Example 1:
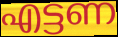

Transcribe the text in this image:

എട്ടണ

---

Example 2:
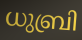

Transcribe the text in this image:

ധുബ്രി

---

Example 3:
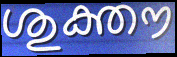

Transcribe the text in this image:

ശുക്തൗ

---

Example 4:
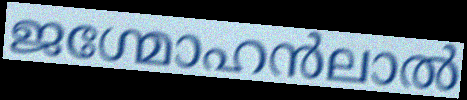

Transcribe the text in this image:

ജഗ്മോഹൻലാൽ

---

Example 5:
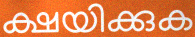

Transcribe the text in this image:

ക്ഷയിക്കുക